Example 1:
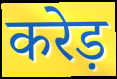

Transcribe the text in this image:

करेड़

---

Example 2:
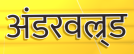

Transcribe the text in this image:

अंडरवल्र्ड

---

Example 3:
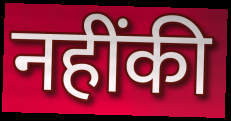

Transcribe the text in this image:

नहींकी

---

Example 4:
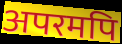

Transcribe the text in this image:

अपरमपि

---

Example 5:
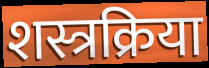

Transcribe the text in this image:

शस्त्रक्रिया